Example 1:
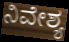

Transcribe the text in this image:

ನಿವೇಶ್ಯ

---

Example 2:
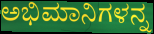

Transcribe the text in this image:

ಅಭಿಮಾನಿಗಳನ್ನ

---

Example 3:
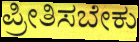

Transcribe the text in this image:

ಪ್ರೀತಿಸಬೇಕು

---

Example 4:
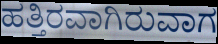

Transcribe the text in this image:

ಹತ್ತಿರವಾಗಿರುವಾಗ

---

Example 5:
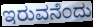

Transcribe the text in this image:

ಇರುವನೆಂದು